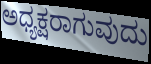
ಅಧ್ಯಕ್ಷರಾಗುವುದು